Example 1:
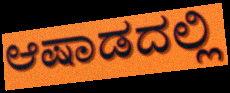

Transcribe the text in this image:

ಆಷಾಡದಲ್ಲಿ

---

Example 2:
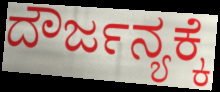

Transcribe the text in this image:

ದೌರ್ಜನ್ಯಕ್ಕೆ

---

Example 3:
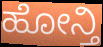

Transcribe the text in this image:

ಹೋನ್ತಿ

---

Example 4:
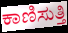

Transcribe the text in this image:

ಕಾಣಿಸುತ್ತಿ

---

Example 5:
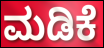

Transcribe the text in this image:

ಮಡಿಕೆ